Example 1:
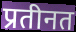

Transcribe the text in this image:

प्रतीनत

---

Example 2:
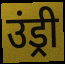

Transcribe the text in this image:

उंड्री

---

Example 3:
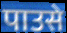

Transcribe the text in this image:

पाउसे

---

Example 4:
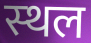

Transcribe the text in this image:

स्‍थल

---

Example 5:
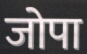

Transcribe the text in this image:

जोपा